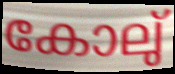
കോലു്